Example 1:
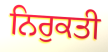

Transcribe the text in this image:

ਨਿਰੁਕਤੀ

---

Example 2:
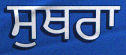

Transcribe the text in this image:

ਸੁਥਰਾ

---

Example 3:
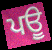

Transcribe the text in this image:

ਪਊ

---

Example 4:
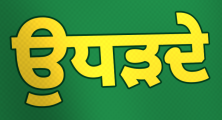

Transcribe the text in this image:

ਉਧੜਦੇ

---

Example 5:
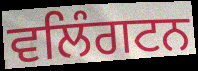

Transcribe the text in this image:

ਵਲਿੰਗਟਨ